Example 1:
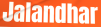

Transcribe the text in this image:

Jalandhar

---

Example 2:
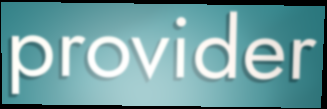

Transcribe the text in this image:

provider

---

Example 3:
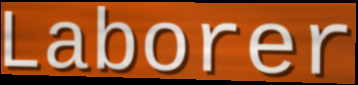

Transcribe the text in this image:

Laborer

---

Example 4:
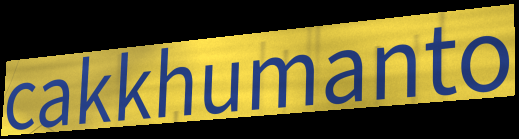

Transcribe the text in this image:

cakkhumanto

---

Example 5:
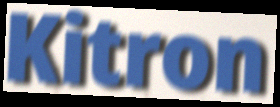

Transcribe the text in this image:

Kitron